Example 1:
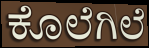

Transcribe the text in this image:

ಕೊಲೆಗಿಲೆ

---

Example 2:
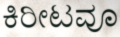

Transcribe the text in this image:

ಕಿರೀಟವೂ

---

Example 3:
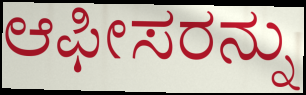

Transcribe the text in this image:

ಆಫೀಸರನ್ನು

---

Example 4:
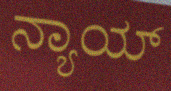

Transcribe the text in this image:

ನ್ಯಾಯ್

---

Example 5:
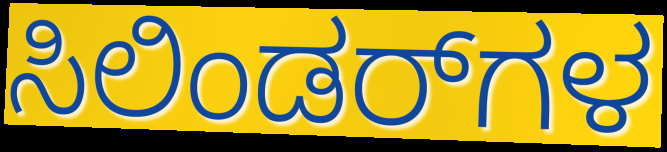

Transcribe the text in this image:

ಸಿಲಿಂಡರ್‌ಗಳ